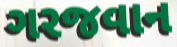
ગરજવાન